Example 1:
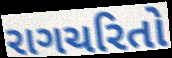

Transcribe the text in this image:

રાગચરિતો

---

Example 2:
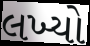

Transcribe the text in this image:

લખ્યો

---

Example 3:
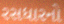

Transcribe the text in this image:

રસધારનો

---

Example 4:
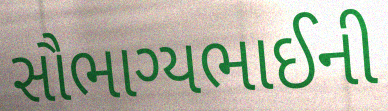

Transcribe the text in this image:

સૌભાગ્યભાઈની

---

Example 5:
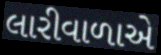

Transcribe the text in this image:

લારીવાળાએ